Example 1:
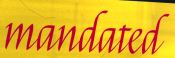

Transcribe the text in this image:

mandated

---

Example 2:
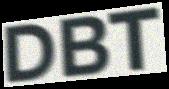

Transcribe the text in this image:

DBT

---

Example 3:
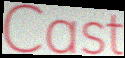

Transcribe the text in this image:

Cast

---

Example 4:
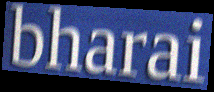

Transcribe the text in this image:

bharai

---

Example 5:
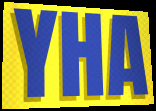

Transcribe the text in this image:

YHA